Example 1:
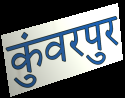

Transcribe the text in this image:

कुंवरपुर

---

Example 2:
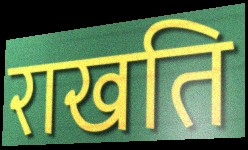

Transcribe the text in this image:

राखति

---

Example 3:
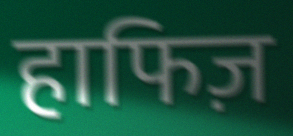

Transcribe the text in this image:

हाफिज़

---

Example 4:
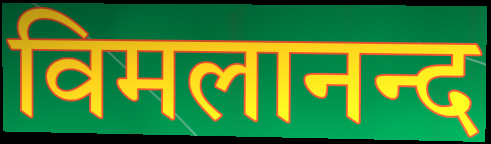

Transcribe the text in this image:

विमलानन्द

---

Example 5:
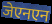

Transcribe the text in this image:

जेएनएन